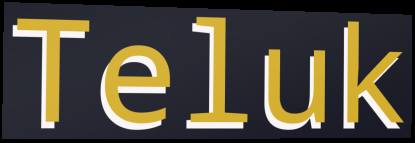
Teluk